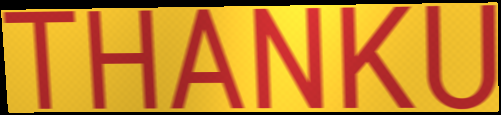
THANKU